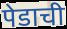
पेडाची